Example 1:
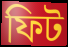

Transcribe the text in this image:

ফিট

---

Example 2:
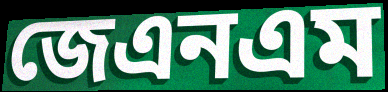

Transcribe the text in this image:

জেএনএম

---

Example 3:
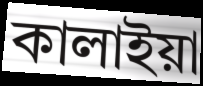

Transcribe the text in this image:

কালাইয়া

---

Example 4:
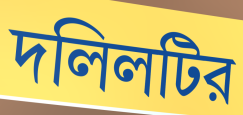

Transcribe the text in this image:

দলিলটির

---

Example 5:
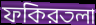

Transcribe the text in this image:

ফকিরতলা